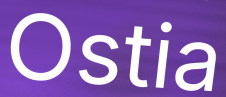
Ostia